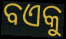
ବଏକୁ